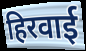
हिरवाई